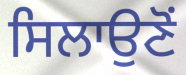
ਸਿਲਾਉਣੋਂ